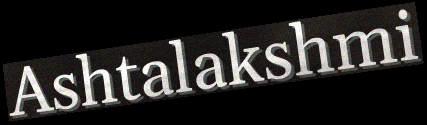
Ashtalakshmi